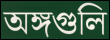
অঙ্গগুলি